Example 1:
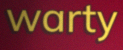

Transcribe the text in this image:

warty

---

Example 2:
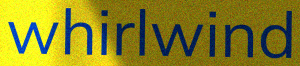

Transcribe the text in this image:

whirlwind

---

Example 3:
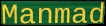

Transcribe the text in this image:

Manmad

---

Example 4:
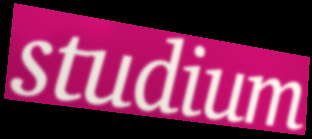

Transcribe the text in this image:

studium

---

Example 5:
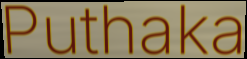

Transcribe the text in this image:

Puthaka